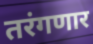
तरंगणार